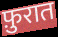
फ़ुरात